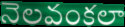
నెలవంకలా